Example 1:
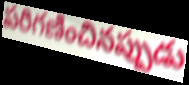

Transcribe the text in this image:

పరిగణించినప్పుడు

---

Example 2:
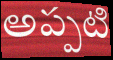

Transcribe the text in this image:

అప్పటి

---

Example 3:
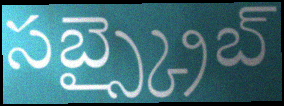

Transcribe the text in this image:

సబ్స్క్రైబ్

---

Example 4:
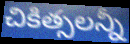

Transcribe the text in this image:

చికిత్సలన్నీ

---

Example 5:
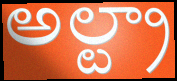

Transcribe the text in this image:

అల్ట్రా